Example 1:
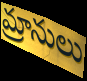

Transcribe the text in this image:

మ్రానులు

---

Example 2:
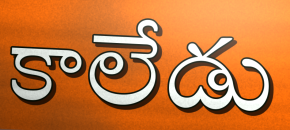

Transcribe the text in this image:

కాలేడు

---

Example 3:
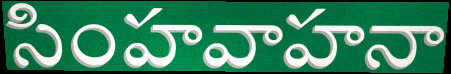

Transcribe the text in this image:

సింహవాహనా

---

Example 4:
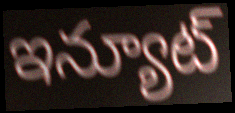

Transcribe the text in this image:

ఇన్యూట్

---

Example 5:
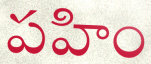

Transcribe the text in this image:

పహిం